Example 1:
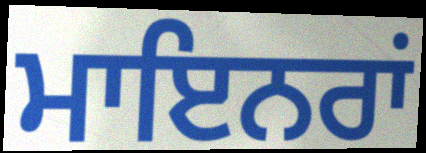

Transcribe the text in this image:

ਮਾਇਨਰਾਂ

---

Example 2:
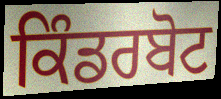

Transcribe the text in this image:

ਕਿੰਡਰਬੋਟ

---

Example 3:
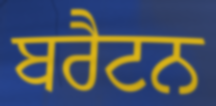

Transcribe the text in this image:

ਬਰੈਟਨ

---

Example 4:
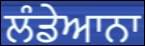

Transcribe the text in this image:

ਲੰਡੇਆਨਾ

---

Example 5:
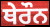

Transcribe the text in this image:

ਥੇਰੌਨ